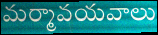
మర్మావయవాలు